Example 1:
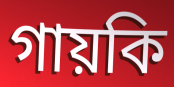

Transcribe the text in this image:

গায়কি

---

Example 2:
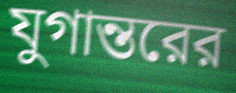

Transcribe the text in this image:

যুগান্তরের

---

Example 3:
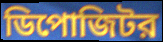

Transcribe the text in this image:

ডিপোজিটর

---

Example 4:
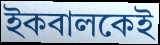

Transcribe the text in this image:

ইকবালকেই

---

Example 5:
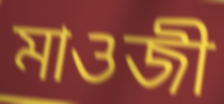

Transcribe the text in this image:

মাওজী